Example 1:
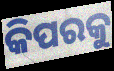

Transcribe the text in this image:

କିପରକୁ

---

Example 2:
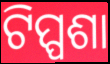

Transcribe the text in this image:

ଟିପ୍ପଶା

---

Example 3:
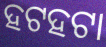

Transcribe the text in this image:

ହଟହଟା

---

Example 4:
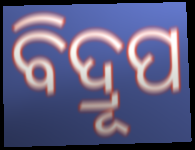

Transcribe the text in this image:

ବିଦ୍ରୂପ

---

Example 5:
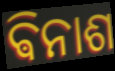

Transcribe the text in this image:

ଵିନାଶ